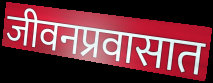
जीवनप्रवासात